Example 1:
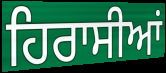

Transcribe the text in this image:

ਹਿਰਾਸੀਆਂ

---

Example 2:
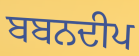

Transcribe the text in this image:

ਬਬਨਦੀਪ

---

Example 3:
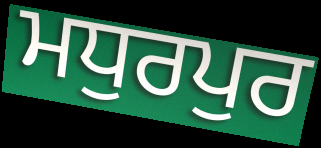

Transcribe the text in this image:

ਮਧੁਰਪੁਰ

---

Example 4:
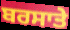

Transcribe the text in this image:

ਬਰਸਾਤੇ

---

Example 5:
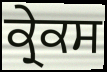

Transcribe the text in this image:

ਕ੍ਰੇਕਸ